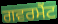
ਗਵਰਮੈਂਟ